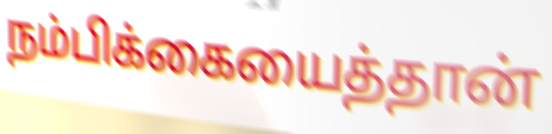
நம்பிக்கையைத்தான்